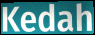
Kedah